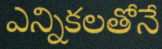
ఎన్నికలతోనే